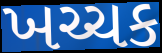
ખચ્ચક